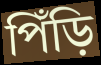
পিঁড়ি